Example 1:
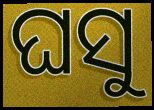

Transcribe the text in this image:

ଘସୁ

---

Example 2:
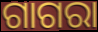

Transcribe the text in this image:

ଗାଗରା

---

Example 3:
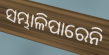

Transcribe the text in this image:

ସମ୍ଭାଳିପାରେନି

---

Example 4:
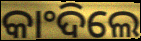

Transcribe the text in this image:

କାଂଦିଲେ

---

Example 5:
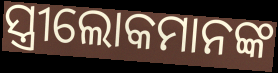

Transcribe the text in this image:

ସ୍ତ୍ରୀଲୋକମାନଙ୍କ